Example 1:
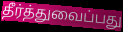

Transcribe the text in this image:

தீர்த்துவைப்பது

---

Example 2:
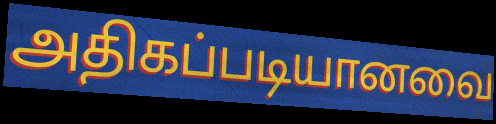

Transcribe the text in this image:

அதிகப்படியானவை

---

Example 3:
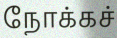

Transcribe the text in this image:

நோக்கச்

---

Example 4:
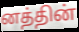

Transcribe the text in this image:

னத்தின்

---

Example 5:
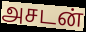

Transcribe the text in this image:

அசடன்